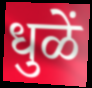
धुळें